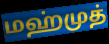
மஹ்முத்